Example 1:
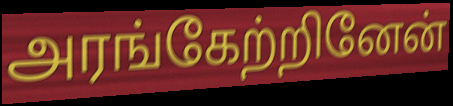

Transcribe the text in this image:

அரங்கேற்றினேன்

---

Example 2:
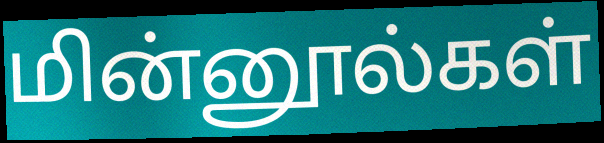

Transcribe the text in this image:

மின்னூல்கள்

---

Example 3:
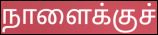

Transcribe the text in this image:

நாளைக்குச்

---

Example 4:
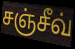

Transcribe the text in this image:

சஞ்சீவ்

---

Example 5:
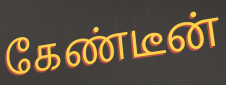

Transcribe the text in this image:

கேண்டீன்